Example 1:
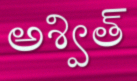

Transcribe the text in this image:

అశ్విత్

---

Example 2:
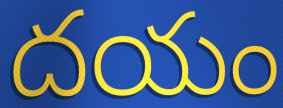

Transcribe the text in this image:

దయం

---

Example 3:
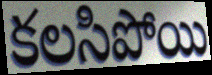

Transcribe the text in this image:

కలసిపోయి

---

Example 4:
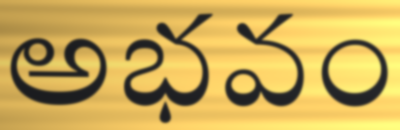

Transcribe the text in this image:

అభవం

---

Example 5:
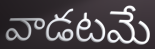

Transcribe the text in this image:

వాడటమే